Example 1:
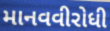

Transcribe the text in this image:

માનવવીરોધી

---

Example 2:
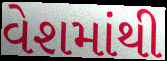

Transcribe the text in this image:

વેશમાંથી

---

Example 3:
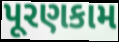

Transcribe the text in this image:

પૂરણકામ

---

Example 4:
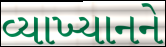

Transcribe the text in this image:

વ્યાખ્યાનને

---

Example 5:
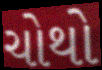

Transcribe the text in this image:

ચોથો